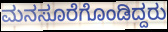
ಮನಸೂರೆಗೊಂಡಿದ್ದರು